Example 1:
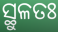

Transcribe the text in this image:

ସ୍ଥୁଳତଃ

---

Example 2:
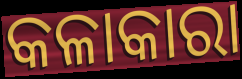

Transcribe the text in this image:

କଳାକାରା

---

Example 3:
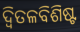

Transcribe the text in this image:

ଦ୍ୱିତଳବିଶିଷ୍ଟ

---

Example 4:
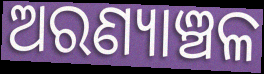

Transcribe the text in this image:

ଅରଣ୍ୟାଞ୍ଚଳ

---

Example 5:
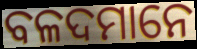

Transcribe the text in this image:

ବଳଦମାନେ